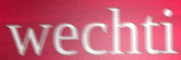
wechti